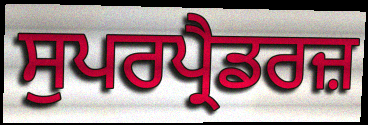
ਸੁਪਰਪ੍ਰੈਡਰਜ਼